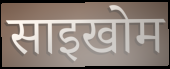
साइखोम